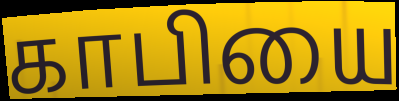
காபியை